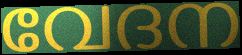
വേദന